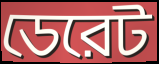
ডেরেট